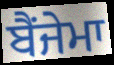
ਬੈਂਜੇਮਾ